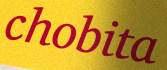
chobita